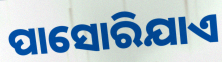
ପାସୋରିଯାଏ